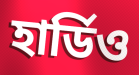
হার্ডিও